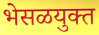
भेसळयुक्त